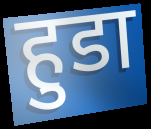
हुडा